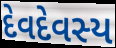
દેવદેવસ્ય